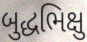
બુદ્ધભિક્ષુ